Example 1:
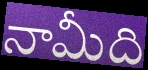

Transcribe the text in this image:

నామీది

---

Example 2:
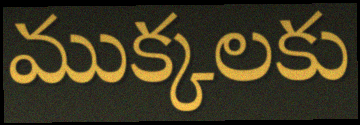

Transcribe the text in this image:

ముక్కలకు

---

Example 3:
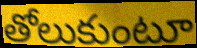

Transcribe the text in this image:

తోలుకుంటూ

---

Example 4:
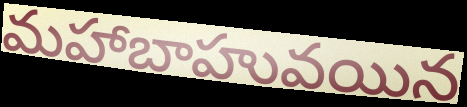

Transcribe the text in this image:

మహాబాహువయిన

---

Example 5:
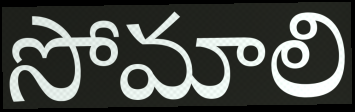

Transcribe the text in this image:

సోమాలి